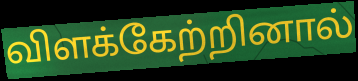
விளக்கேற்றினால்